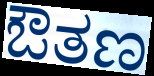
ಔತಣ